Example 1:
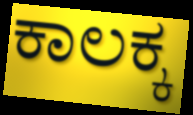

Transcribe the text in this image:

ಕಾಲಕ್ಕ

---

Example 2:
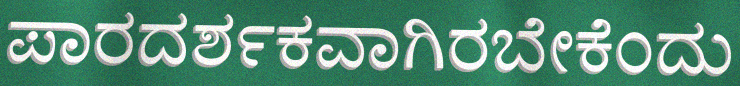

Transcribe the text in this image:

ಪಾರದರ್ಶಕವಾಗಿರಬೇಕೆಂದು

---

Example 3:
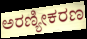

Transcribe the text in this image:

ಅರಣ್ಯೀಕರಣ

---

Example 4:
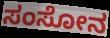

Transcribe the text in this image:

ಸಂಸೋನ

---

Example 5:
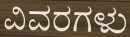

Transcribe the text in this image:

ವಿವರಗಳು